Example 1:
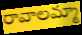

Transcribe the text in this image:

రావాలమ్మా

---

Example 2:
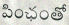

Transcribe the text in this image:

పింఛంతో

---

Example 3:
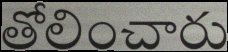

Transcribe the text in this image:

తోలించారు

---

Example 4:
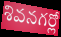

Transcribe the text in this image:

శివనగర్లో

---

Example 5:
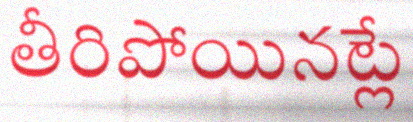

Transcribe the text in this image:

తీరిపోయినట్లే